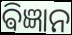
ଵିଜ୍ଞାନ